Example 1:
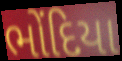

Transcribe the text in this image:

ભોંદિયા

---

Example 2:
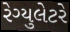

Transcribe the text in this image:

રેગ્યુલેટરે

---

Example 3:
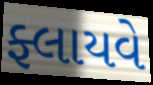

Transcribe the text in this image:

ફ્લાયવે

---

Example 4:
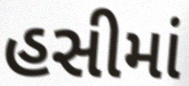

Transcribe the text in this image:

હસીમાં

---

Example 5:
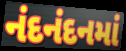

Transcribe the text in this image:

નંદનંદનમાં